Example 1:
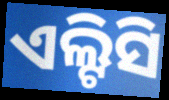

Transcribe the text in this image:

ଏଲ୍ଟିସି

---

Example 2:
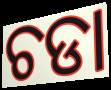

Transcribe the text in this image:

ଚଡା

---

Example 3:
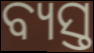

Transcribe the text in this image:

ବ୍ୟସ୍ତ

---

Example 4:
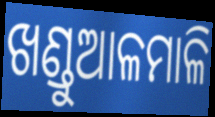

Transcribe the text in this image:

ଖଣ୍ଡୁଆଳମାଳି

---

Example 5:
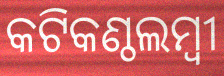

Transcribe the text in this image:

କଟିକଣ୍ଠଲମ୍ବୀ